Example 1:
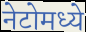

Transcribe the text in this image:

नेटोमध्ये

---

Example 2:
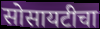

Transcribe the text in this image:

सोसायटीचा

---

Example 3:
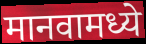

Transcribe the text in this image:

मानवामध्ये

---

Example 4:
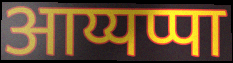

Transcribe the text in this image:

आय्यप्पा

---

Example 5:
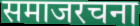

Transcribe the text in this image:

समाजरचना